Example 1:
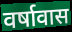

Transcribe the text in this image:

वर्षावास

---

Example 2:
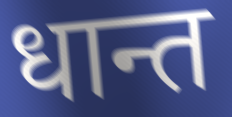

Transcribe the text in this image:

धान्त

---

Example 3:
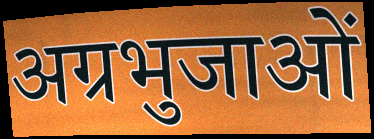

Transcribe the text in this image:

अग्रभुजाओं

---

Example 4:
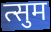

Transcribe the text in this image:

त्सुम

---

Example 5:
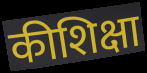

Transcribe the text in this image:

कीशिक्षा